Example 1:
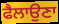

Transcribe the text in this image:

ਫੈਲਾਉਣਾ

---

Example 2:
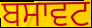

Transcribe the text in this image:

ਬਸਾਵਟ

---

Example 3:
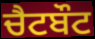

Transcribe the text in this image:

ਚੈਟਬੌਟ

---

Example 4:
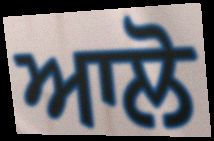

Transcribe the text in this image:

ਆਲੋ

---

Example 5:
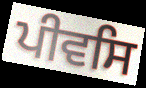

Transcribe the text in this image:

ਪੀਵਸਿ